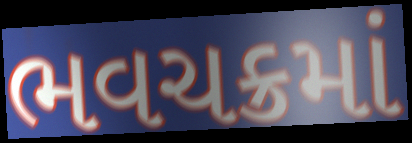
ભવચક્રમાં